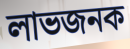
লাভজনক